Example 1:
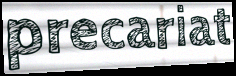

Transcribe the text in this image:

precariat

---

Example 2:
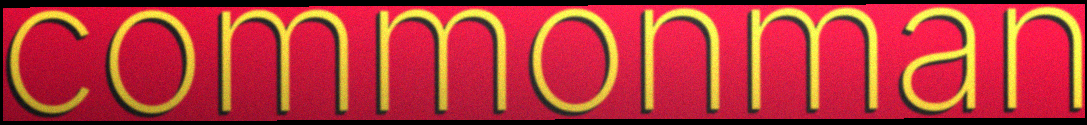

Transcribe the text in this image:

commonman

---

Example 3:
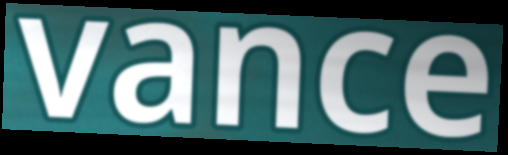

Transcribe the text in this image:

vance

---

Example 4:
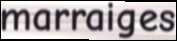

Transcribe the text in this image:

marraiges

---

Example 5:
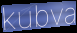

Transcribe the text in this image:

kubva